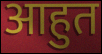
आहुत